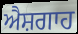
ਐਸ਼ਗਾਹ